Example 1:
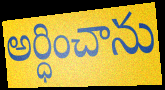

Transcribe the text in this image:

అర్ధించాను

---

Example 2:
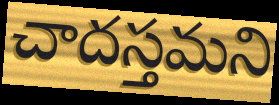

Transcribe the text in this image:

చాదస్తమని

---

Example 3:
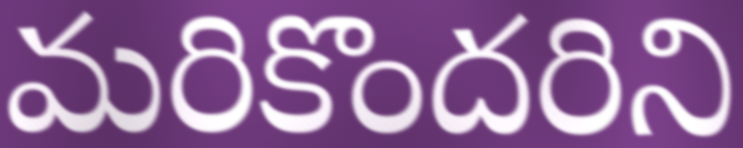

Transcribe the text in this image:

మరికొందరిని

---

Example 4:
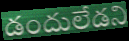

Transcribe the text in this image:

డందులేడని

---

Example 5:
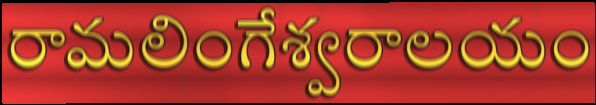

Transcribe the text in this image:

రామలింగేశ్వరాలయం